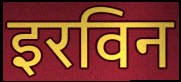
इरविन